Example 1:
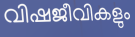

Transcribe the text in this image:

വിഷജീവികളും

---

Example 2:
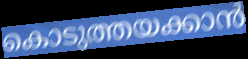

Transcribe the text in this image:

കൊടുത്തയക്കാൻ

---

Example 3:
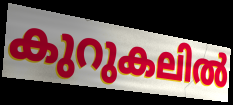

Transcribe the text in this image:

കുറുകലിൽ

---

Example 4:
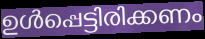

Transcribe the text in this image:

ഉൾപ്പെട്ടിരിക്കണം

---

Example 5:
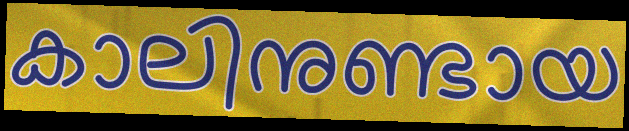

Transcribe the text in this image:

കാലിനുണ്ടായ